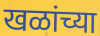
खळांच्या